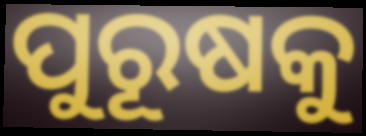
ପୁରୂଷକୁ